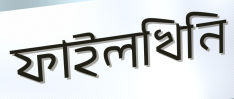
ফাইলখিনি